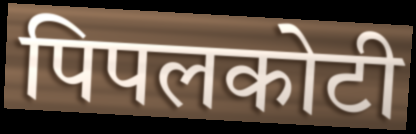
पिपलकोटी